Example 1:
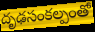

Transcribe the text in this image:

దృఢసంకల్పంతో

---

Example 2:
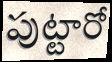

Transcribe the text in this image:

పుట్టారో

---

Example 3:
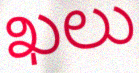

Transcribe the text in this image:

ఖలు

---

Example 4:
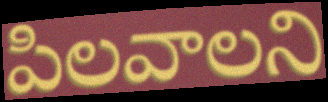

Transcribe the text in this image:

పిలవాలని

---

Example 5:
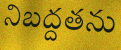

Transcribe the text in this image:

నిబద్దతను